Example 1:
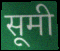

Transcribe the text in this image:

सूमी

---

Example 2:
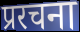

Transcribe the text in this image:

प्ररचना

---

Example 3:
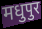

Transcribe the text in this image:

मधुपुर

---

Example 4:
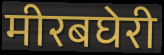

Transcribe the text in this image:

मीरबघेरी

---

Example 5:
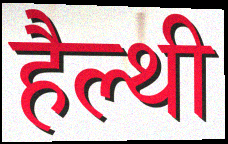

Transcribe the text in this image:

हैल्थी